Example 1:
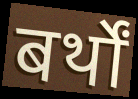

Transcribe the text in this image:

बर्थों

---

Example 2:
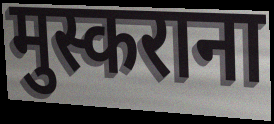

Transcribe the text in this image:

मुस्कराना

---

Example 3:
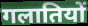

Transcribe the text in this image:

गलातियों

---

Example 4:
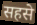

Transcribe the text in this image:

सहसे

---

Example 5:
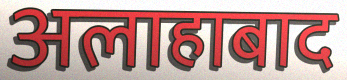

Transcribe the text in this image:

अलाहाबाद